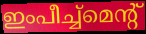
ഇംപീച്ച്മെന്റ്